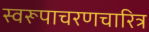
स्वरूपाचरणचारित्र